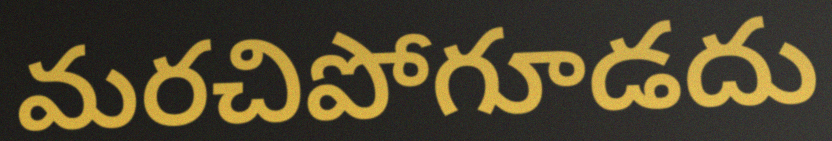
మరచిపోగూడదు